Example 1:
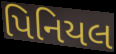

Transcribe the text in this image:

પિનિયલ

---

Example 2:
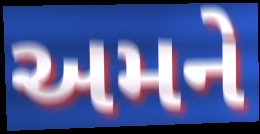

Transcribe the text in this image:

અમને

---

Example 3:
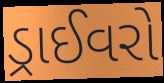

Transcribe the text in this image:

ડ્રાઈવરો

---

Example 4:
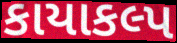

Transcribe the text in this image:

કાયાકલ્પ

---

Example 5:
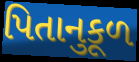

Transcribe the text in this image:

પિતાનુકૂળ